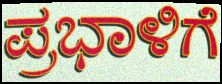
ಪ್ರಭಾಳಿಗೆ